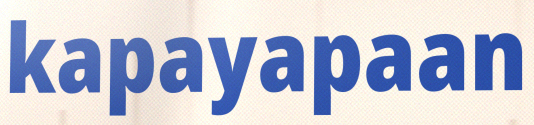
kapayapaan